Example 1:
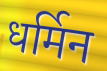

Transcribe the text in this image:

धर्मिन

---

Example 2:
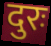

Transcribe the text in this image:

दुरः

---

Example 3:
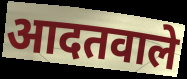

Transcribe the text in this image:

आदतवाले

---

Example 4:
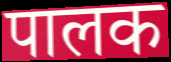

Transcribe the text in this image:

पालक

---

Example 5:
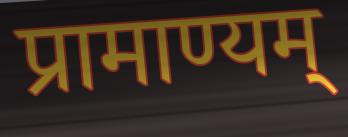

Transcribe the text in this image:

प्रामाण्यम्